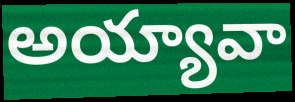
అయ్యావా